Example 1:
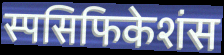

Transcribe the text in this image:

स्पसिफिकेशंस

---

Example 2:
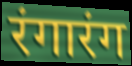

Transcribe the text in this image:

रंगारंग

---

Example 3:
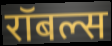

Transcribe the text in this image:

रॉबल्स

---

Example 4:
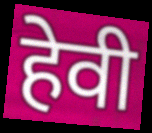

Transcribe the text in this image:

हेवी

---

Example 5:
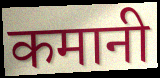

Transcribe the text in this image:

कमानी